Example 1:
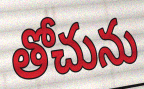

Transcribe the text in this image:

తోచును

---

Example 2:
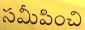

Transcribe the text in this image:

సమీపించి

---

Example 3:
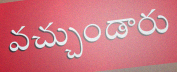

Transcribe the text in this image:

వచ్చుండారు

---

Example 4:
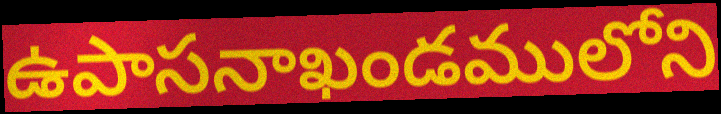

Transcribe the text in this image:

ఉపాసనాఖండములోని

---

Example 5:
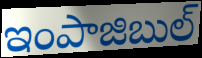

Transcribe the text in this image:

ఇంపాజిబుల్